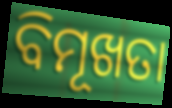
ବିମୂଖତା